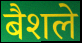
बैशले